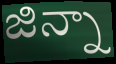
జిన్నా